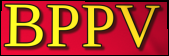
BPPV